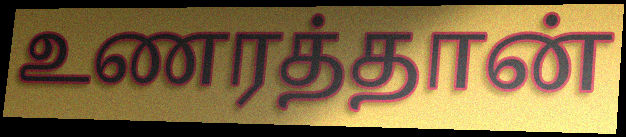
உணரத்தான்